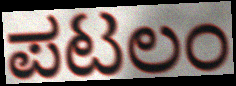
ಪಟಲಂ